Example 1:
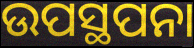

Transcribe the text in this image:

ଉପସ୍ଥପନା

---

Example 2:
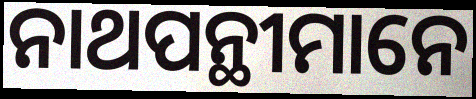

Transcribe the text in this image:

ନାଥପନ୍ଥୀମାନେ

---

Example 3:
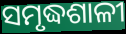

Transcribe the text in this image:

ସମୃଦ୍ଧଶାଳୀ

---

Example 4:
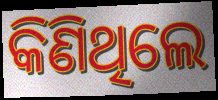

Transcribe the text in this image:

କିଣିଥିଲେ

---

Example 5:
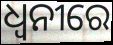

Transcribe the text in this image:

ଧ୍ଵନୀରେ